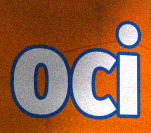
oci